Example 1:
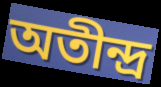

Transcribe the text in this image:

অতীন্দ্র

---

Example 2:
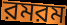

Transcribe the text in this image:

রমরম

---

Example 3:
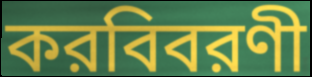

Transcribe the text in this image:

করবিবরণী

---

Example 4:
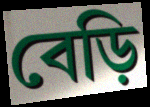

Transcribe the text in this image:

বেড়ি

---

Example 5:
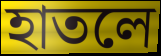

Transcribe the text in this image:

হাতলে